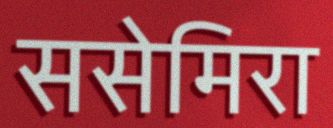
ससेमिरा